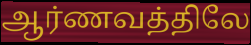
ஆர்ணவத்திலே